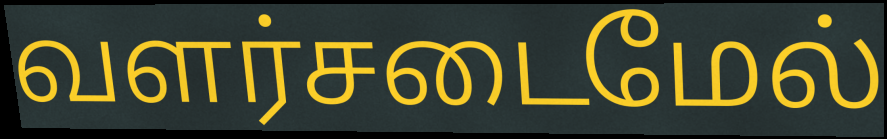
வளர்சடைமேல்